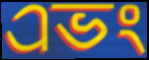
এভং